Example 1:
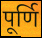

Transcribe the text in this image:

पूर्णि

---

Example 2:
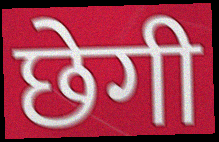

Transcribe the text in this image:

छेगी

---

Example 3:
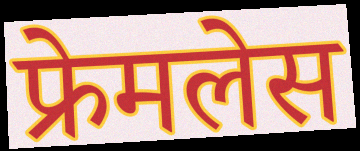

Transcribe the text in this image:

फ्रेमलेस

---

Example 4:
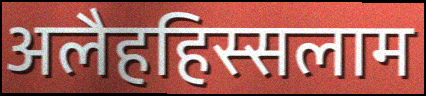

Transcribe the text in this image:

अलैहहिस्सलाम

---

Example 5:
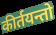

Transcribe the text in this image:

कीर्तयन्तो